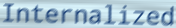
Internalized